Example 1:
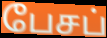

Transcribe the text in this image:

பேசப்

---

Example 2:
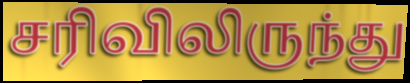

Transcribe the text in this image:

சரிவிலிருந்து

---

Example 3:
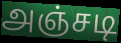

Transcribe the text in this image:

அஞ்சடி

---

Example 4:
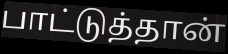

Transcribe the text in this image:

பாட்டுத்தான்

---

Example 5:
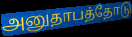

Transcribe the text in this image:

அனுதாபத்தோடு